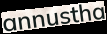
annustha